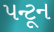
પન્ટૂન